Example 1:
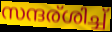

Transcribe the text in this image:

സന്ദര്ശിച്ച്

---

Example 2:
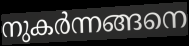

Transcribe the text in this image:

നുകർന്നങ്ങനെ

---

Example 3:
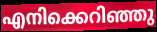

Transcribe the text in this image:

എനിക്കെറിഞ്ഞു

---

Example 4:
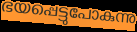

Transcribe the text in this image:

ഭയപ്പെട്ടുപോകുന്നു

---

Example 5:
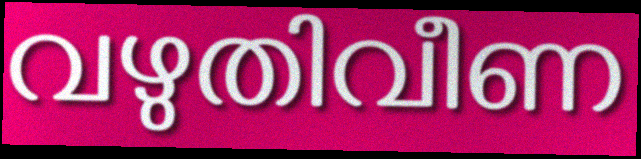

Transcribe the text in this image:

വഴുതിവീണ